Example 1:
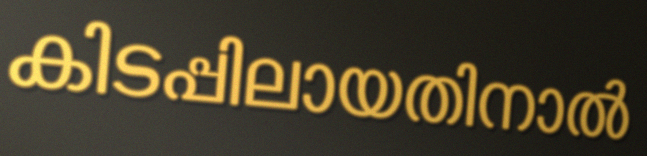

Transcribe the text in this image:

കിടപ്പിലായതിനാൽ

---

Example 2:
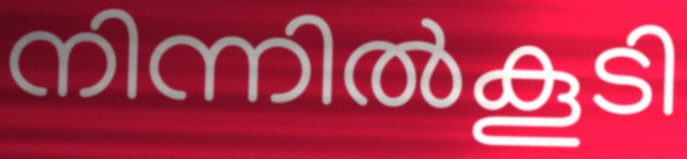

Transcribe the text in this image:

നിന്നിൽകൂടി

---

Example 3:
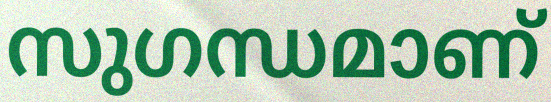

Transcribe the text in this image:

സുഗന്ധമാണ്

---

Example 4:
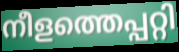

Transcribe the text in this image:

നീളത്തെപ്പറ്റി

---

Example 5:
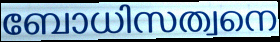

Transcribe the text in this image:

ബോധിസത്വനെ